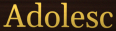
Adolesc